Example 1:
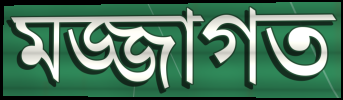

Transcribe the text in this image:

মজ্জাগত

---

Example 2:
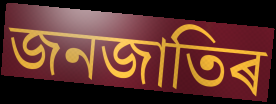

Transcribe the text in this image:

জনজাতিৰ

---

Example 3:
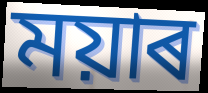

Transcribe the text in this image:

ময়াৰ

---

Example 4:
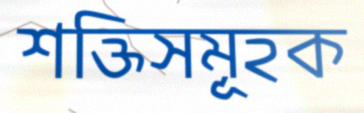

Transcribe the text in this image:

শক্তিসমূহক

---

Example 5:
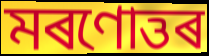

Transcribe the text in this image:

মৰণোত্তৰ